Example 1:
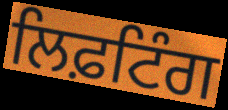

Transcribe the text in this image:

ਲਿਫ਼ਟਿੰਗ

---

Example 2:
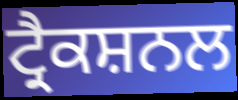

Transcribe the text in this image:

ਟ੍ਰੈਕਸ਼ਨਲ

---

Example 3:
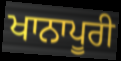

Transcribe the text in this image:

ਖਾਨਾਪੂਰੀ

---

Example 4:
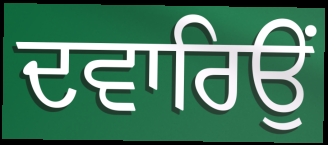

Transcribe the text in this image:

ਦਵਾਰਿਉਂ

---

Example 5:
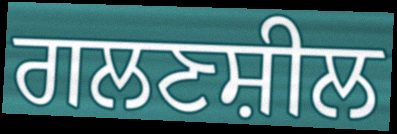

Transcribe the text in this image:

ਗਲਣਸ਼ੀਲ